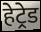
हेट्रेड